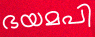
ഭയമപി